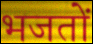
भजतों